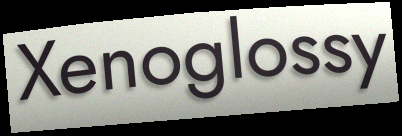
Xenoglossy